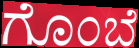
ಗೊಂಬೆ